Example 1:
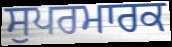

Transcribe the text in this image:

ਸੁਪਰਮਾਰਕ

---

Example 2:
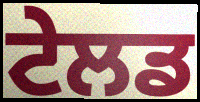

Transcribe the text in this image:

ਟੇਲਡ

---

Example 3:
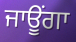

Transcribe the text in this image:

ਜਾਊਂਗਾ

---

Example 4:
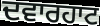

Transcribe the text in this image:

ਦਵਾਰਹਾਟ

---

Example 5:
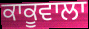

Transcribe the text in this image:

ਕਾਕੂਵਾਲਾ